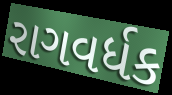
રાગવર્ધક